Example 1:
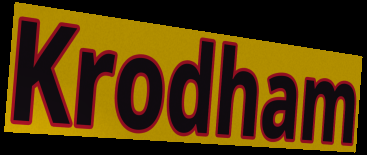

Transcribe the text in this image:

Krodham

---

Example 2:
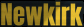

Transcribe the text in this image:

Newkirk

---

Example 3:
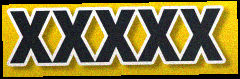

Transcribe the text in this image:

XXXXX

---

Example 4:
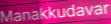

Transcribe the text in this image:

Manakkudavar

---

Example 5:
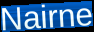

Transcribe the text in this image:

Nairne